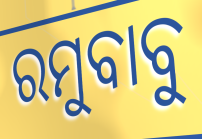
ରମୁବାବୁ